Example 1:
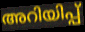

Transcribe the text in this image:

അറിയിപ്പ്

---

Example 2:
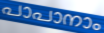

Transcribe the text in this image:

പാപാനാം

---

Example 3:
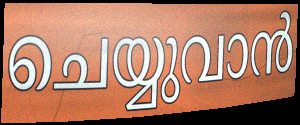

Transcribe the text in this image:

ചെയ്യുവാൻ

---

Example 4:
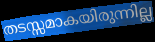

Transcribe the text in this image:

തടസ്സമാകയിരുന്നില്ല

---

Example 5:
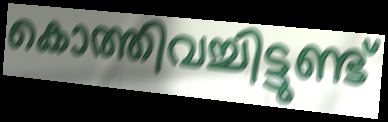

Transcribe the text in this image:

കൊത്തിവച്ചിട്ടുണ്ട്